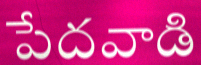
పేదవాడి